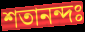
শতানন্দঃ